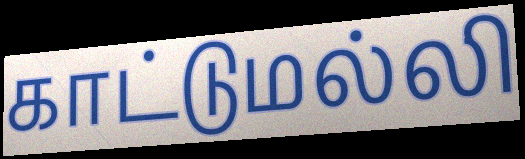
காட்டுமல்லி